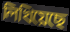
লিখিয়েছে